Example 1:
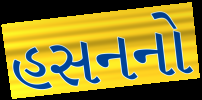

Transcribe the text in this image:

હસનનો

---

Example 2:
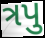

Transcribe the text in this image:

ત્રપુ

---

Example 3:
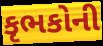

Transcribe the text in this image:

કૃભકોની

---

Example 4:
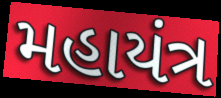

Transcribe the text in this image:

મહાયંત્ર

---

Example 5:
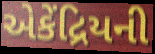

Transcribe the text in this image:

એકેંદ્રિયની